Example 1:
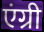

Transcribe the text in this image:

एंग्री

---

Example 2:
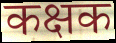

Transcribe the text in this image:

कक्षक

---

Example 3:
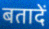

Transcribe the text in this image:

बतादें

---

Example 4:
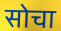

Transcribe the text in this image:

सोचा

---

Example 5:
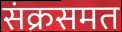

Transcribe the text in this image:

संक्रसमत